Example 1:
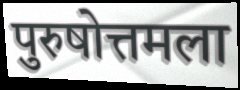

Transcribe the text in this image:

पुरुषोत्तमला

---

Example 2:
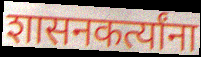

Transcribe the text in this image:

शासनकर्त्यांना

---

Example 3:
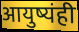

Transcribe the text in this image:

आयुष्यंही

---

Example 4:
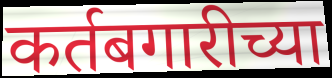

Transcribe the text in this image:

कर्तबगारीच्या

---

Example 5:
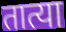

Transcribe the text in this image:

तात्या